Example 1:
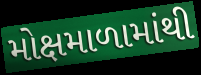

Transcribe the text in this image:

મોક્ષમાળામાંથી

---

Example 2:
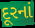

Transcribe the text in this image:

દૂરનાં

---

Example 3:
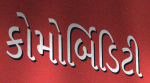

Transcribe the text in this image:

કોમોર્બિડિટી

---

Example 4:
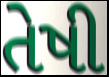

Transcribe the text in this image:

તેષી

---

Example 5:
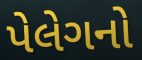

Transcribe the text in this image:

પેલેગનો